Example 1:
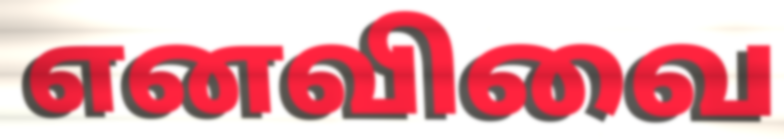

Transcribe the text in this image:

எனவிவை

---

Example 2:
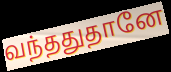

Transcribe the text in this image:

வந்ததுதானே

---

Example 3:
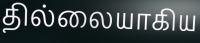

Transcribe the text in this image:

தில்லையாகிய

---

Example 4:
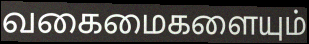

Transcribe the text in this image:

வகைமைகளையும்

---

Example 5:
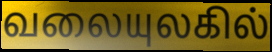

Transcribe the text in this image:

வலையுலகில்